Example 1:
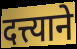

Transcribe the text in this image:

दत्त्याने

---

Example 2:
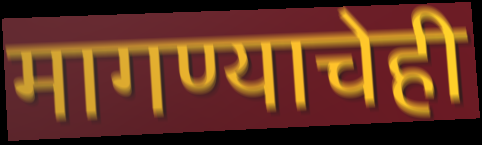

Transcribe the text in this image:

मागण्याचेही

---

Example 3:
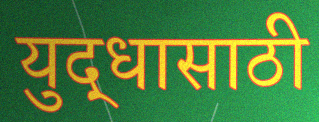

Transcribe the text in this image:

युद्धासाठी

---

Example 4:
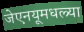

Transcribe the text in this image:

जेएनयूमधल्या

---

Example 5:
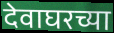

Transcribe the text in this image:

देवाघरच्या